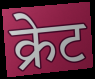
क्रेट